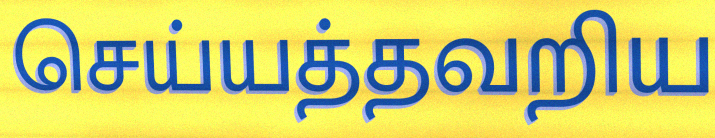
செய்யத்தவறிய